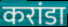
करांडा